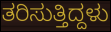
ತರಿಸುತ್ತಿದ್ದಳು